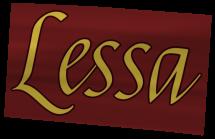
Lessa